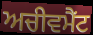
ਅਚੀਵਮੈਂਟ